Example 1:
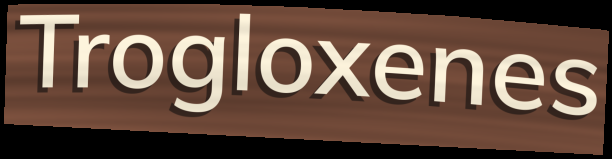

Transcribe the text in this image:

Trogloxenes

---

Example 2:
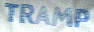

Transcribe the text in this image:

TRAMP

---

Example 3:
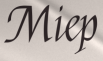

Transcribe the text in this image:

Miep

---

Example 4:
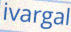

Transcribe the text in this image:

ivargal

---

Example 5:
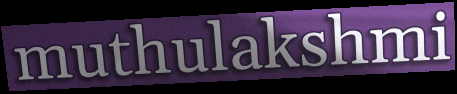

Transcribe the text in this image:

muthulakshmi